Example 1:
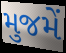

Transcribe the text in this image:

મુજમેં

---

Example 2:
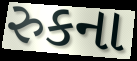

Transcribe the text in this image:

રુકના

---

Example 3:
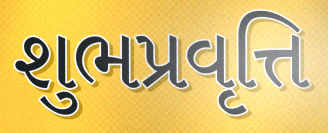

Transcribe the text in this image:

શુભપ્રવૃત્તિ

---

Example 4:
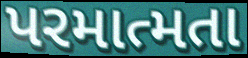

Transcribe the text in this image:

પરમાત્મતા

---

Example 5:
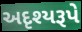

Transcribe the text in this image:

અદૃશ્યરૂપે